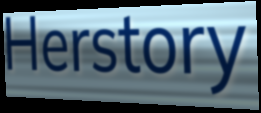
Herstory